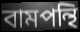
বামপন্থি